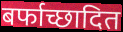
बर्फाच्छादित